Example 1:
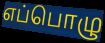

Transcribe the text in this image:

எப்பொழு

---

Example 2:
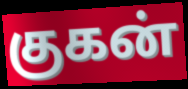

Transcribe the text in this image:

குகன்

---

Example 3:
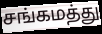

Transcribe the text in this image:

சங்கமத்து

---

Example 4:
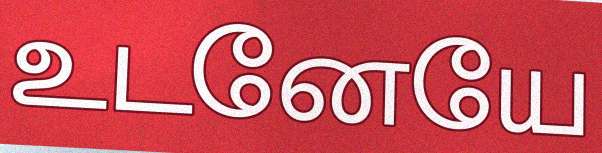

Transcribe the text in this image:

உடனேயே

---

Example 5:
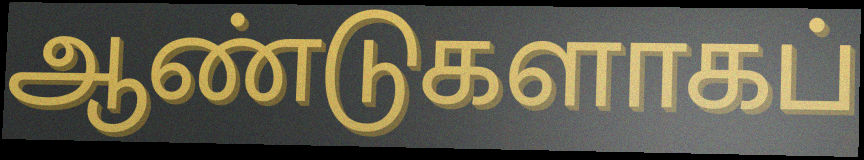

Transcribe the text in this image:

ஆண்டுகளாகப்